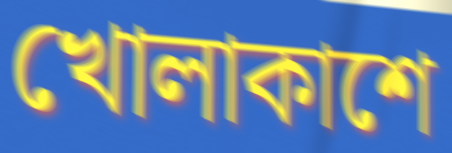
খোলাকাশে